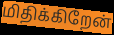
மிதிக்கிறேன்